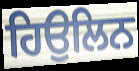
ਹਿਉਲਿਨ